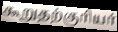
கூறுதற்குரியர்